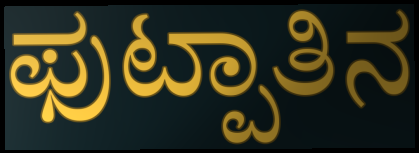
ಫುಟ್ಪಾತಿನ